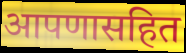
आपणासहित